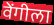
वेंगीला